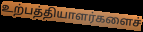
உற்பத்தியாளர்களைச்